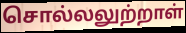
சொல்லலுற்றாள்